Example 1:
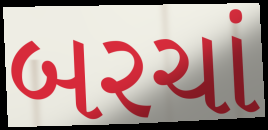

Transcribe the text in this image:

બરચાં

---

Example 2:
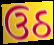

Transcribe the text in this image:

ઉઠ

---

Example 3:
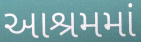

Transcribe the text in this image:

આશ્રમમાં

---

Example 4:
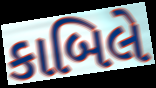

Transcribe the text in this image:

કાબિલે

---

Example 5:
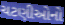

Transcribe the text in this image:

ચટણીઓનો